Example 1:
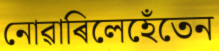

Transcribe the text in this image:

নোৱাৰিলেহেঁতেন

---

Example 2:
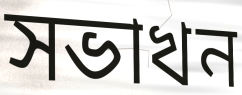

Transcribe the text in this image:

সভাখন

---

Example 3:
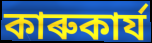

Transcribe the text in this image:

কাৰুকাৰ্য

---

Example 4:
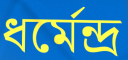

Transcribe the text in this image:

ধৰ্মেন্দ্ৰ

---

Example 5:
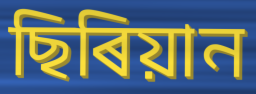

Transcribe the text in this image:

ছিৰিয়ান